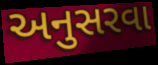
અનુસરવા